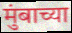
मुंबाच्या